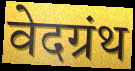
वेदग्रंथ